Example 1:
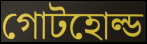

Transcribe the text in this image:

গোটহোল্ড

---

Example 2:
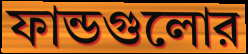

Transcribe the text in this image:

ফান্ডগুলোর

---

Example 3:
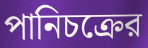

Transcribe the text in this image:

পানিচক্রের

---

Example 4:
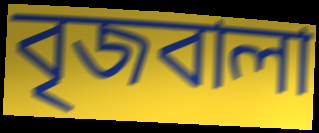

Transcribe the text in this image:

বৃজবালা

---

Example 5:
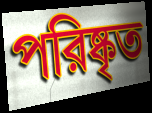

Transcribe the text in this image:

পরিষ্কৃত